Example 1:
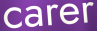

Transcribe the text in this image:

carer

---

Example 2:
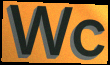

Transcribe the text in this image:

Wc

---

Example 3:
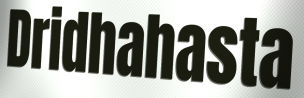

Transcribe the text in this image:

Dridhahasta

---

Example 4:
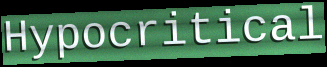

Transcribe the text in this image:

Hypocritical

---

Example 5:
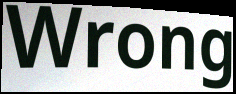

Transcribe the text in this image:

Wrong